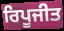
ਰਿਪੂਜੀਤ